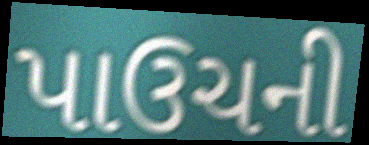
પાઉચની